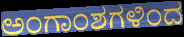
ಅಂಗಾಂಶಗಳಿಂದ